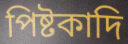
পিষ্টকাদি